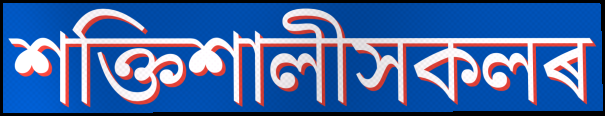
শক্তিশালীসকলৰ